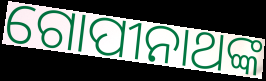
ଗୋପୀନାଥଙ୍କ